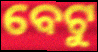
ବେଟୁ